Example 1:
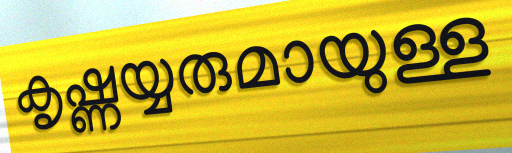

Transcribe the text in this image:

കൃഷ്ണയ്യരുമായുള്ള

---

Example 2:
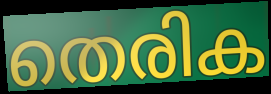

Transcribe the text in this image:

തെരിക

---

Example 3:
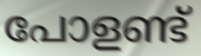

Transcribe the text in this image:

പോളണ്ട്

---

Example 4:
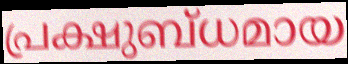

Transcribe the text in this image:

പ്രക്ഷുബ്ധമായ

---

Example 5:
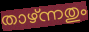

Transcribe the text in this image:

താഴ്ന്നതും